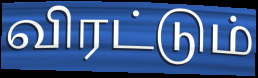
விரட்டும்